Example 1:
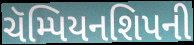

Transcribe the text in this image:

ચૅમ્પિયનશિપની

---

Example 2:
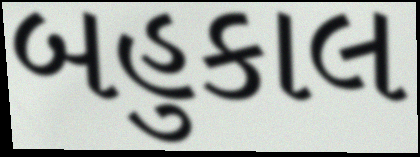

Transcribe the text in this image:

બહુકાલ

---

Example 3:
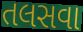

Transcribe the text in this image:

તલસવા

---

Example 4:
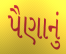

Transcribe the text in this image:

પૈણાનું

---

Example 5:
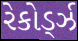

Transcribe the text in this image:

રેકોર્ડ્ઝ